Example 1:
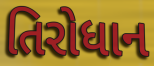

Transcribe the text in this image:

તિરોધાન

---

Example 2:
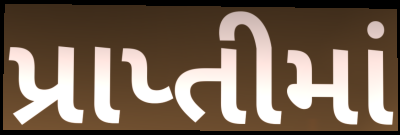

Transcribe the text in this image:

પ્રાપ્તીમાં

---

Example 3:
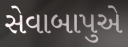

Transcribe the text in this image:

સેવાબાપુએ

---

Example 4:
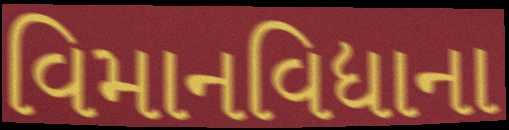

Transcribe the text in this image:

વિમાનવિદ્યાના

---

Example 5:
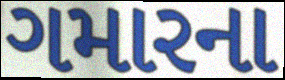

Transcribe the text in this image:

ગમારના